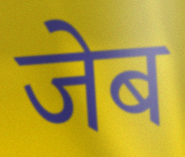
जेब